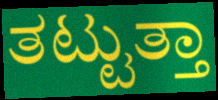
ತಟ್ಟುತ್ತಾ